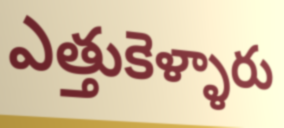
ఎత్తుకెళ్ళారు